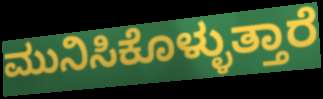
ಮುನಿಸಿಕೊಳ್ಳುತ್ತಾರೆ